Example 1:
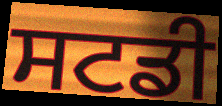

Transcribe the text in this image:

ਸਟਡੀ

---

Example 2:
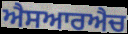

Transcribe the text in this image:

ਐਸਆਰਐਚ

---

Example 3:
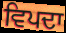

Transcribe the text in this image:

ਵਿਪਦਾ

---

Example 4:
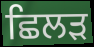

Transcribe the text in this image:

ਛਿਲੜ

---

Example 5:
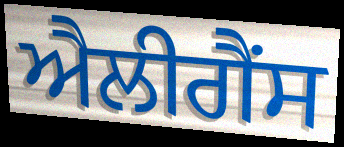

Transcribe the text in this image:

ਐਲੀਗੈਂਸ